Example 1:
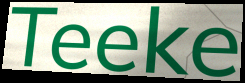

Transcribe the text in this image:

Teeke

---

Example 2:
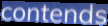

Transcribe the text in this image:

contends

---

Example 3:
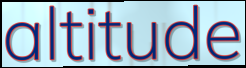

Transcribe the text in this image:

altitude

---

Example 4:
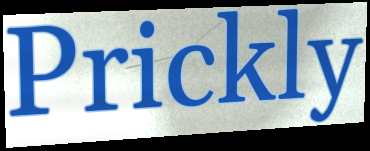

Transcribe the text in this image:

Prickly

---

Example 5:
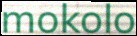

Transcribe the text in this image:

mokolo